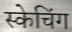
स्केचिंग